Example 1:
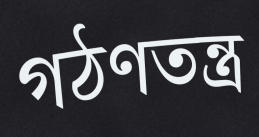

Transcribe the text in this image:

গঠণতন্ত্র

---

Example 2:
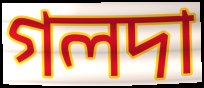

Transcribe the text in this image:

গলদা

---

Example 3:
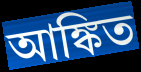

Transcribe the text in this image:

আঙ্কিত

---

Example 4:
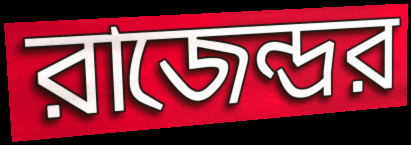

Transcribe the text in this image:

রাজেন্দ্রর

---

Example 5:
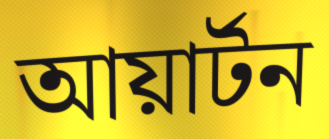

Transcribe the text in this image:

আয়ার্টন